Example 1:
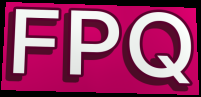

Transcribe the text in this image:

FPQ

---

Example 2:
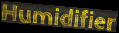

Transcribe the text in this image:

Humidifier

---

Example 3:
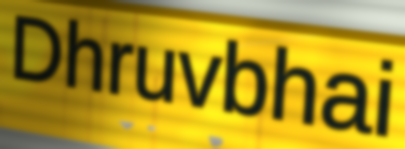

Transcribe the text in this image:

Dhruvbhai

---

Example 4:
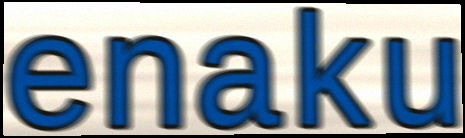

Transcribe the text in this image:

enaku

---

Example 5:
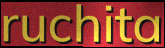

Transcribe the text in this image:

ruchita